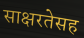
साक्षरतेसह